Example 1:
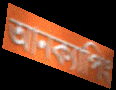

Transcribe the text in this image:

আনক্যাপিং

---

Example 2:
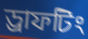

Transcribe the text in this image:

ড্রাফটিং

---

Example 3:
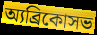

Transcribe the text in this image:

অ্যব্রিকোসভ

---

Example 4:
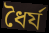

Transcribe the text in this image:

ধৈর্য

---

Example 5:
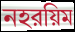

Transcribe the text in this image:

নহরয়িম